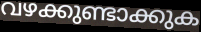
വഴക്കുണ്ടാക്കുക